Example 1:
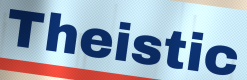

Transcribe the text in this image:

Theistic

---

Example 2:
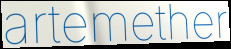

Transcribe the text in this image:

artemether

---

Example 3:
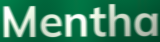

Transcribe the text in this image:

Mentha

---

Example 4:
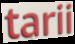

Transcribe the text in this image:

tarii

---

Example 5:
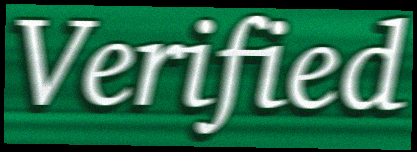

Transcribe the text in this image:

Verified